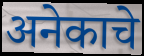
अनेकाचे